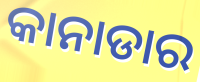
କାନାଡାର